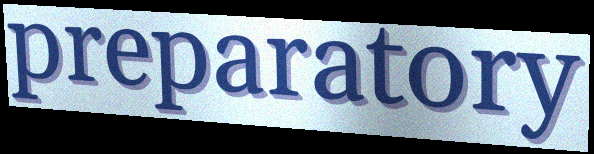
preparatory